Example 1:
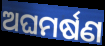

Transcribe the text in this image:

ଅଘମର୍ଷଣ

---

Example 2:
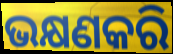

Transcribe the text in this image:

ଭକ୍ଷଣକରି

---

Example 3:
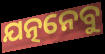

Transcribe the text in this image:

ଯତ୍ନନେବୁ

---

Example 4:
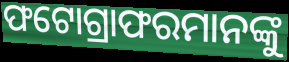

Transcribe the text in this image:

ଫଟୋଗ୍ରାଫରମାନଙ୍କୁ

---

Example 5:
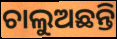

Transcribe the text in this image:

ଚାଲୁଅଛନ୍ତି